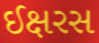
ઈક્ષરસ